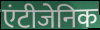
एंटीजेनिक